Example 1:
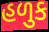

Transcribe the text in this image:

હળુક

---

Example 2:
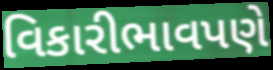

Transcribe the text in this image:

વિકારીભાવપણે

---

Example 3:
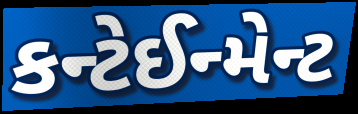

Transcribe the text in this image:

કન્ટેઈન્મેન્ટ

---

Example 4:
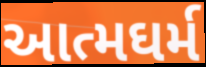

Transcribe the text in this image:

આત્મઘર્મ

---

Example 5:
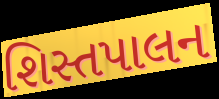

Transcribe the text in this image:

શિસ્તપાલન